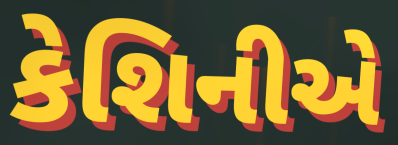
કેશિનીએ